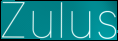
Zulus